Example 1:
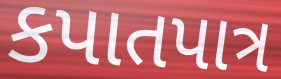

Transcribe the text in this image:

કપાતપાત્ર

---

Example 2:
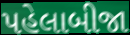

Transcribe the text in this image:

પહેલાબીજા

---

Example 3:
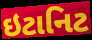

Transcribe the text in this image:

ઇટાનિટ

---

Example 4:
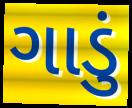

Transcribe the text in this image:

ગાડું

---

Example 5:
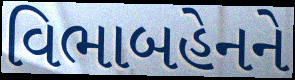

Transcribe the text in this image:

વિભાબહેનને